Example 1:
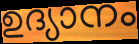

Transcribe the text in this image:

ഉദ്യാനം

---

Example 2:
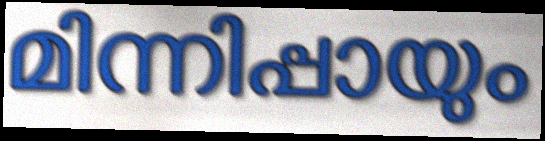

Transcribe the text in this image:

മിന്നിപ്പായും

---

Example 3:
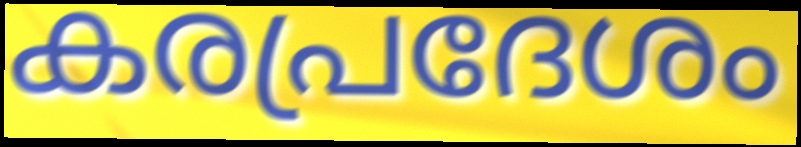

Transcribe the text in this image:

കരപ്രദേശം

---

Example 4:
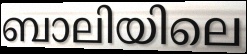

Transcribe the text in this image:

ബാലിയിലെ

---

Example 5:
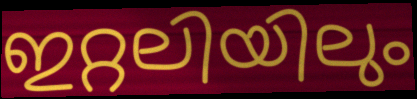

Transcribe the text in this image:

ഇറ്റലിയിലും